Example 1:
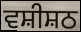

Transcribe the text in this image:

ਵਸ਼ੀਸ਼ਠ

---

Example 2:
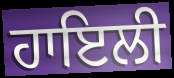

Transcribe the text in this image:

ਹਾਇਲੀ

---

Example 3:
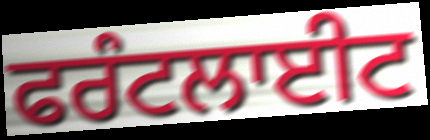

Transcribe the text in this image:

ਫਰੰਟਲਾਈਟ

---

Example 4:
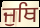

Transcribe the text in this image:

ਜੁਥਿ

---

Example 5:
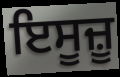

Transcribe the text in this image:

ਇਸੂਜ਼ੂ